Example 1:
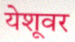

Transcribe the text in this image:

येशूवर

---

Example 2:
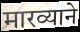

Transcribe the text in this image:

मारव्याने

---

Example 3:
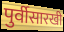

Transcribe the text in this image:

पुर्वीसारखी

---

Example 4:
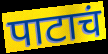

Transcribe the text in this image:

पाटाचं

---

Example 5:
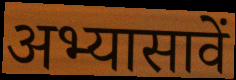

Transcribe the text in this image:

अभ्यासावें